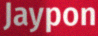
Jaypon